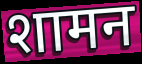
शामन